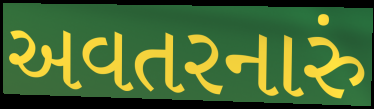
અવતરનારું